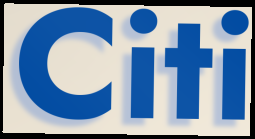
Citi